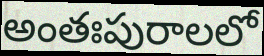
అంతఃపురాలలో